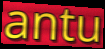
antu